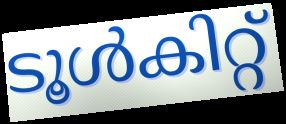
ടൂൾകിറ്റ്